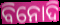
ବିନୋଦି